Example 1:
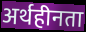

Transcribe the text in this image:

अर्थहीनता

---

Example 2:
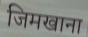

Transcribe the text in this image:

जिमखाना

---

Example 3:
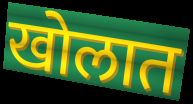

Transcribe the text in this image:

खोलात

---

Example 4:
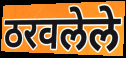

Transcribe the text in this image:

ठरवलेले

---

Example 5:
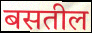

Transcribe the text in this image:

बसतील